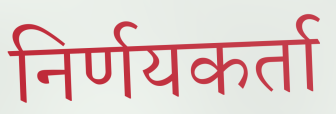
निर्णयकर्ता